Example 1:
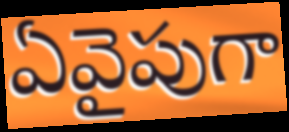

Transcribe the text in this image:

ఏవైపుగా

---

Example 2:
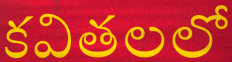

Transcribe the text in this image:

కవితలలో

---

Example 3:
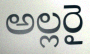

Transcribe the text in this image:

అల్లరై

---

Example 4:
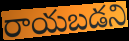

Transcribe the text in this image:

రాయబడని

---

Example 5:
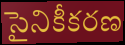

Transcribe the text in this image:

సైనికీకరణ